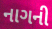
નાગની